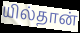
யில்தான்